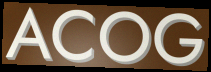
ACOG